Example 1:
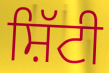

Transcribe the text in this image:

ਸ਼ਿੱਟੀ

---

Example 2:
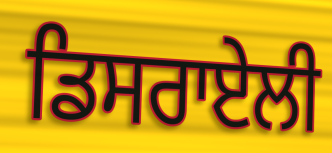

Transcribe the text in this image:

ਡਿਸਰਾਏਲੀ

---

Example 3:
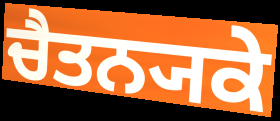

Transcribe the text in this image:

ਚੈਤਨ੍ਯਕੇ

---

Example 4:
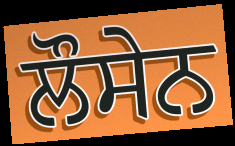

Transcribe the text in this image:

ਲੌਸੇਨ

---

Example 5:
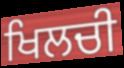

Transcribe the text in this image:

ਖਿਲਚੀ